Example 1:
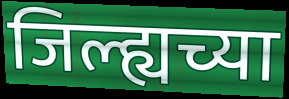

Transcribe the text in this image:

जिल्ह्यच्या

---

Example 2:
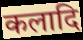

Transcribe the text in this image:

कलादि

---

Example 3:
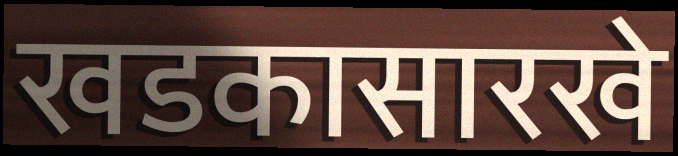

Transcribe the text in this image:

खडकासारखे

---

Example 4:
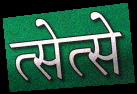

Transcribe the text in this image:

त्सेत्से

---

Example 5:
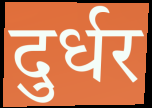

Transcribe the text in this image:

दुर्धर